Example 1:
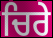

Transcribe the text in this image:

ਚਿਰੇ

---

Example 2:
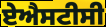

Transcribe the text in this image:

ਏਐਸਟੀਸੀ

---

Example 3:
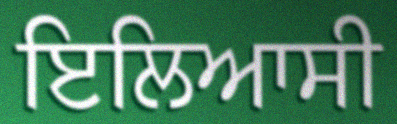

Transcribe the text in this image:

ਇਲਿਆਸੀ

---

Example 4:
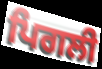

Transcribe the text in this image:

ਪਿਗਲੀ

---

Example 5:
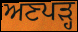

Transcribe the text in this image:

ਅਣਪੜ੍ਹ